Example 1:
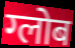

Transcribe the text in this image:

ग्‍लोब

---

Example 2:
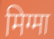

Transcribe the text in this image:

मिग्मा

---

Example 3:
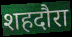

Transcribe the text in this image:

शहदौरा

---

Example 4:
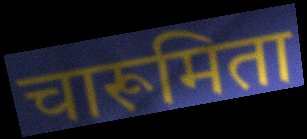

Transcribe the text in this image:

चारूमिता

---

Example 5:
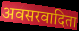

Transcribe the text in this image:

अवसरवादिता